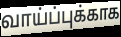
வாய்ப்புக்காக